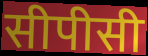
सीपीसी